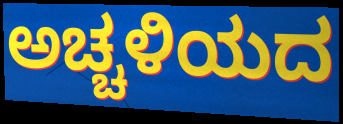
ಅಚ್ಚಳಿಯದ